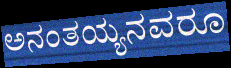
ಅನಂತಯ್ಯನವರೂ